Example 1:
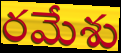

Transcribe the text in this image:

రమేశు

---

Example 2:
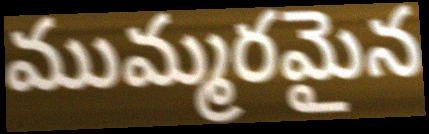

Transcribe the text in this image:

ముమ్మరమైన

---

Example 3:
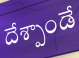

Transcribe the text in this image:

దేశ్పాండే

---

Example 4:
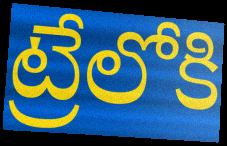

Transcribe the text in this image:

ట్రేలోకి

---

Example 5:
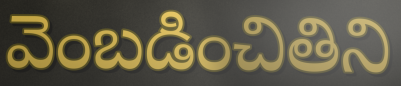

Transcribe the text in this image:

వెంబడించితిని